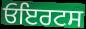
ਓਇਰਟਸ